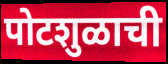
पोटशुळाची